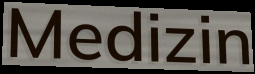
Medizin